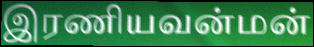
இரணியவன்மன்